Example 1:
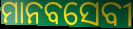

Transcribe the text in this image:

ମାନବସେବୀ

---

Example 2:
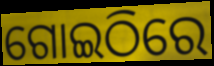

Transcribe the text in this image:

ଗୋଇଠିରେ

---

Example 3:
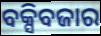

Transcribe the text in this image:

ବକ୍ସିବଜାର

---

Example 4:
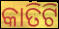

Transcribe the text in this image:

କାତିଟି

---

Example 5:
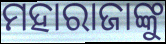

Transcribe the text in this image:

ମହାରାଜାଙ୍କୁ